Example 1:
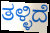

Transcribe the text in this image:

ತಳ್ಳಿದೆ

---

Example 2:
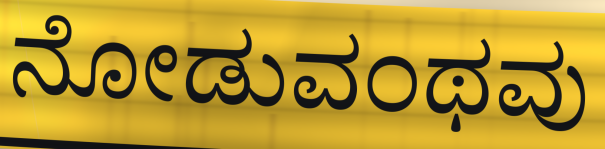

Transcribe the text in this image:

ನೋಡುವಂಥವು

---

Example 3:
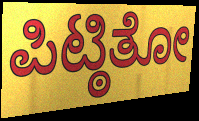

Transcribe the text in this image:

ಪಿಟ್ಠಿತೋ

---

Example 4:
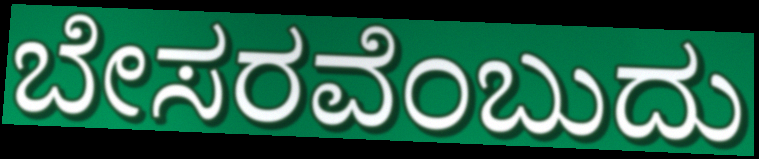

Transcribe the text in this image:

ಬೇಸರವೆಂಬುದು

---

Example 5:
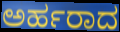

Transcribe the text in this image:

ಅರ್ಹರಾದ